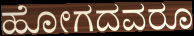
ಹೋಗದವರೂ